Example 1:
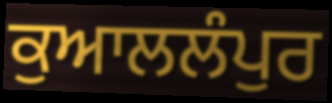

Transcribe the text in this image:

ਕੁਆਲਲੰਪੁਰ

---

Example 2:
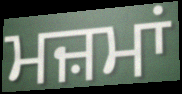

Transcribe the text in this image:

ਮਜ਼ਮਾਂ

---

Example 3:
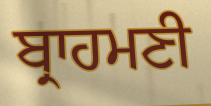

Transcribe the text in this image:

ਬ੍ਰਾਹਮਣੀ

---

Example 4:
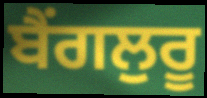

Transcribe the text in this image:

ਬੈਂਗਲੁਰੂ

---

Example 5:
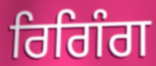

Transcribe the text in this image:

ਰਿਗਿੰਗ